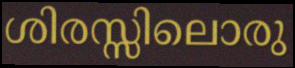
ശിരസ്സിലൊരു